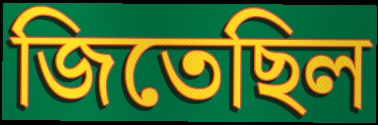
জিতেছিল